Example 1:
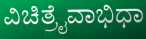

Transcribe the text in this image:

ವಿಚಿತ್ರೈವಾಭಿಧಾ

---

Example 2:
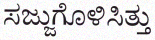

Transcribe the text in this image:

ಸಜ್ಜುಗೊಳಿಸಿತ್ತು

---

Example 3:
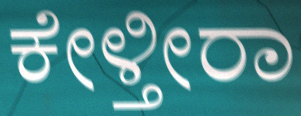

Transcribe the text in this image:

ಕೇಳ್ತೀರಾ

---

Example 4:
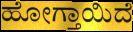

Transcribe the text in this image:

ಹೋಗ್ತಾಯಿದೆ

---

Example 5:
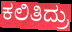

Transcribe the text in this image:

ಕಲಿತಿದ್ರು